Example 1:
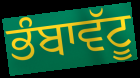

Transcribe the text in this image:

ਭੰਬਾਵੱਟੂ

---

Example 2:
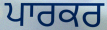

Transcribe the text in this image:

ਪਾਰਕਰ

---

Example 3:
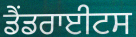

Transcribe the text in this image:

ਡੈਂਡਰਾਈਟਸ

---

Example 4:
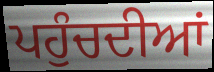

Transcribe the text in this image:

ਪਹੁੰਚਦੀਆਂ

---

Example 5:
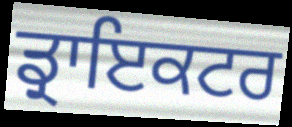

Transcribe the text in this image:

ਡ੍ਰਾਇਕਟਰ